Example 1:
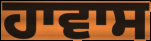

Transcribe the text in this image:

ਹਾਵਾਸ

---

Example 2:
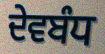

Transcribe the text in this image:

ਦੇਵਬੰਧ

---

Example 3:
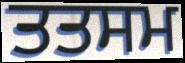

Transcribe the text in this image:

ਤਤਸਮ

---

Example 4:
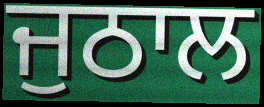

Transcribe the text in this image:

ਜੁਠਾਲ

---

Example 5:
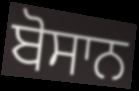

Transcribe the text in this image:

ਬੋਸਾਨ